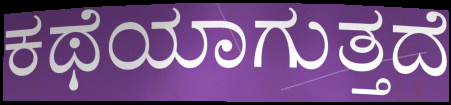
ಕಥೆಯಾಗುತ್ತದೆ